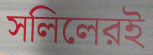
সলিলেরই